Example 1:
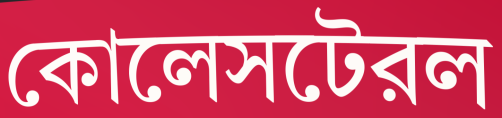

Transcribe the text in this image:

কোলেসটেরল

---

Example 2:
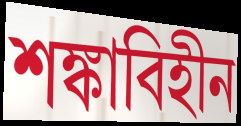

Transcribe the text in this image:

শঙ্কাবিহীন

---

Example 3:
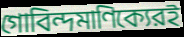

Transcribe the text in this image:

গোবিন্দমাণিক্যেরই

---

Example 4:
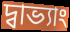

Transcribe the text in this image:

দ্বাভ্যাং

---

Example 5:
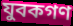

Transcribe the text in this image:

যুবকগণ